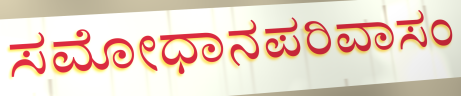
ಸಮೋಧಾನಪರಿವಾಸಂ